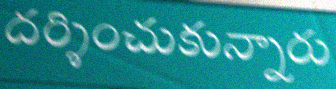
దర్శించుకున్నారు